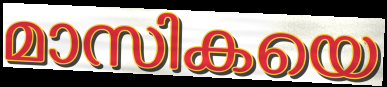
മാസികയെ